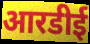
आरडीई